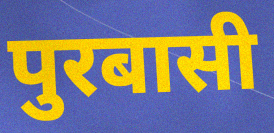
पुरबासी